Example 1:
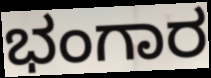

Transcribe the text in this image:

ಭಂಗಾರ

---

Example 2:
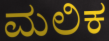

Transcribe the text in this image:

ಮಲಿಕ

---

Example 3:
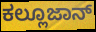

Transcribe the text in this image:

ಕಲ್ಲೂಜಾನ್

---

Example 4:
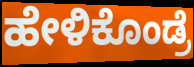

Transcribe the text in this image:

ಹೇಳಿಕೊಂಡ್ರೆ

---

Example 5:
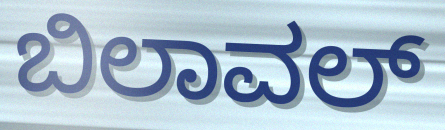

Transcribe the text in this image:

ಬಿಲಾವಲ್